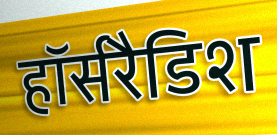
हॉर्सरैडिश